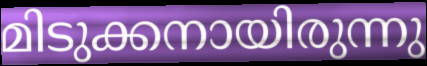
മിടുക്കനായിരുന്നു